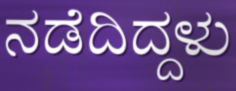
ನಡೆದಿದ್ದಳು